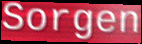
Sorgen